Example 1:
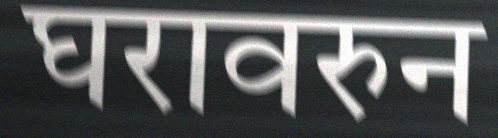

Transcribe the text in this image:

घरावरुन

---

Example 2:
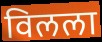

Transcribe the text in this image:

विलला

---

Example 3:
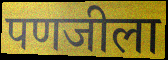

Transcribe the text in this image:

पणजीला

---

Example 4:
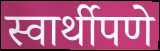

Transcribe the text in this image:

स्वार्थीपणे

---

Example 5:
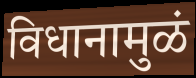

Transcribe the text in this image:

विधानामुळं